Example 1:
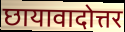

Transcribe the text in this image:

छायावादोत्तर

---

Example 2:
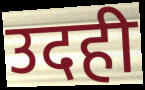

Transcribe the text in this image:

उदही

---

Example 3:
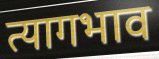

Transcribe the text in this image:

त्यागभाव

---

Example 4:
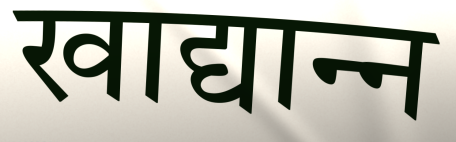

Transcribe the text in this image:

खाद्यान्‍न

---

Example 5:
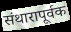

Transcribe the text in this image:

संथारापूर्वक